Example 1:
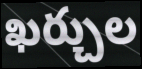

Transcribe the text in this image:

ఖర్చుల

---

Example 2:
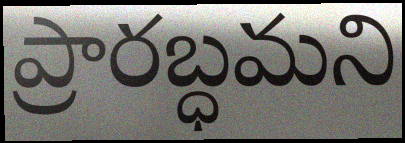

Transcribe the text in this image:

ప్రారబ్ధమని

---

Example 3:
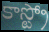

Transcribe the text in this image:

కాస్ట్రో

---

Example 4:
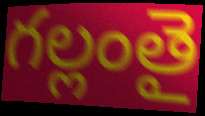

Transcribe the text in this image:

గల్లంతై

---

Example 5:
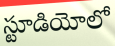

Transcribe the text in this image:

స్టూడియోలో